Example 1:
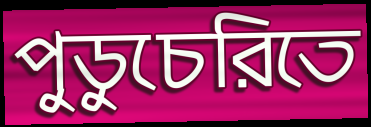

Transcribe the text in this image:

পুডুচেরিতে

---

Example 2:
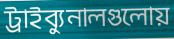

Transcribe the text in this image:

ট্রাইব্যুনালগুলোয়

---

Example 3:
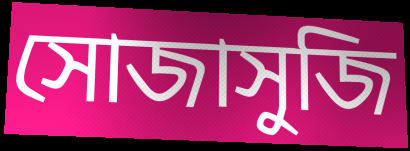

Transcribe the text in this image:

সোজাসুজি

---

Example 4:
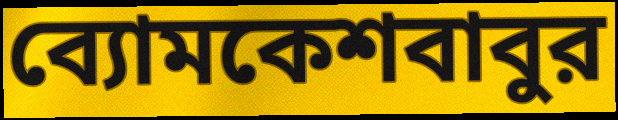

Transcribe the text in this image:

ব্যোমকেশবাবুর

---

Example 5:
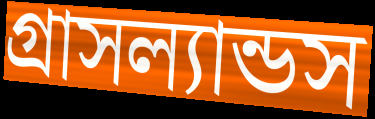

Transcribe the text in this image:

গ্রাসল্যান্ডস